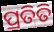
ପ୍ରତିତି